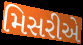
મિસરીએ